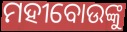
ମହୀବୋଉଙ୍କୁ